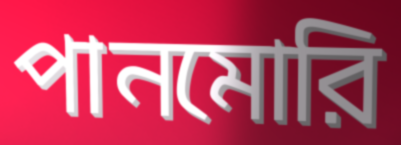
পানমোরি